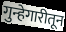
गुन्हेगारीतून